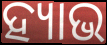
ହ୍ୟାଭ